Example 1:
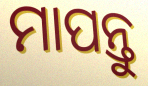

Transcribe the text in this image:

ମାପନ୍ତୁ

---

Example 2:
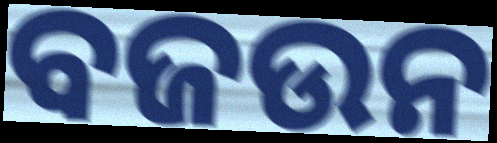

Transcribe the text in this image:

ବଜଉନ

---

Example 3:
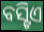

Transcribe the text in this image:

ବସ୍ଟିଏ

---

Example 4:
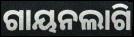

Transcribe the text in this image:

ଗାୟନଲାଗି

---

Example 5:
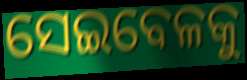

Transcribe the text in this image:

ସେଇବେଳକୁ